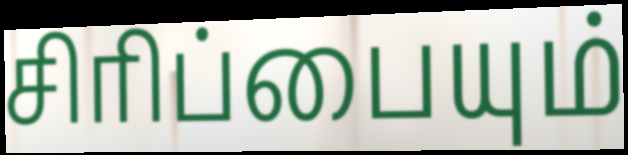
சிரிப்பையும்